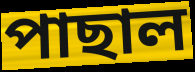
পাছাল